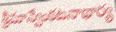
శ్రీమాన్వేంకటనాథార్య